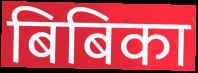
बिबिका